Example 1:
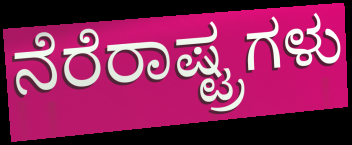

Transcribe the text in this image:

ನೆರೆರಾಷ್ಟ್ರಗಳು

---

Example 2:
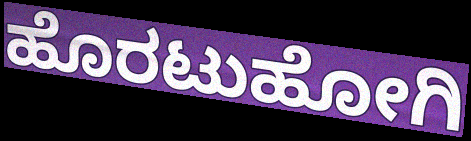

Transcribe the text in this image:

ಹೊರಟುಹೋಗಿ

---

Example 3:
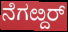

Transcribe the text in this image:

ನೆಗೞ್ದರ್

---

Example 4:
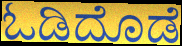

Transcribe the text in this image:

ಓಡಿದೊಡೆ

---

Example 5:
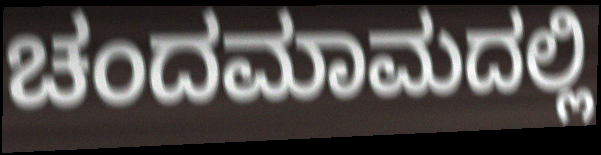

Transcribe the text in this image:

ಚಂದಮಾಮದಲ್ಲಿ